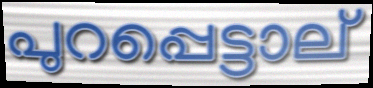
പുറപ്പെട്ടാല്